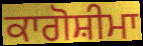
ਕਾਗੋਸ਼ੀਮਾ